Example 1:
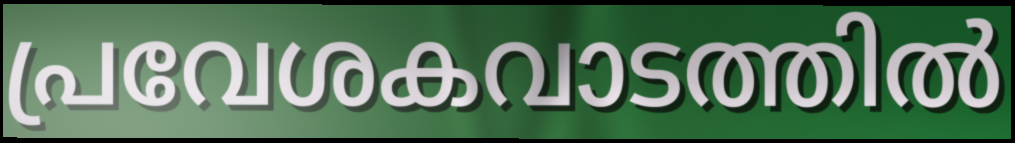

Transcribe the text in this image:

പ്രവേശകവാടത്തിൽ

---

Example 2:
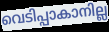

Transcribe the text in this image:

വെടിപ്പാകാനില്ല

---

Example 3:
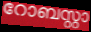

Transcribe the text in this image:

റോബസ്റ്റാ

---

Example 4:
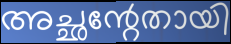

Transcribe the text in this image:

അച്ഛന്റേതായി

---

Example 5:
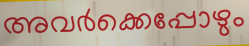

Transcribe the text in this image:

അവർക്കെപ്പോഴും